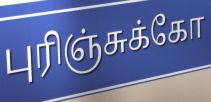
புரிஞ்சுக்கோ